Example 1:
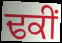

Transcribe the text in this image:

ਢਕੀਂ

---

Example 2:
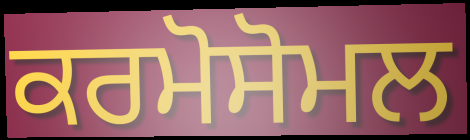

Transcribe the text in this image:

ਕਰਮੋਸੋਮਲ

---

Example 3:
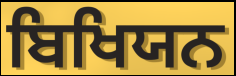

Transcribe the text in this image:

ਬਿਖਿਯਨ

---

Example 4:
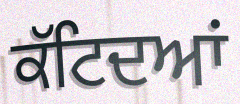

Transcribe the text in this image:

ਕੱਟਿਦਆਂ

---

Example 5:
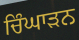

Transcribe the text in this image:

ਚਿੰਘਾੜਨ